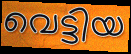
വെട്ടിയ